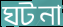
ঘটনা